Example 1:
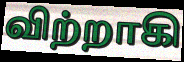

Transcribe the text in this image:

விற்றாகி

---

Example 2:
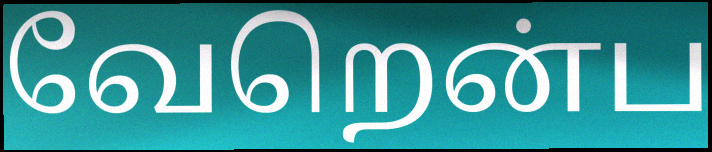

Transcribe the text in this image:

வேறென்ப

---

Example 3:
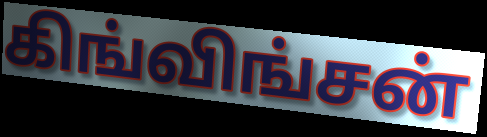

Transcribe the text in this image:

கிங்விங்சன்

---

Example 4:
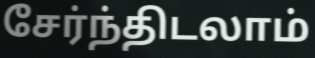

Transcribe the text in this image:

சேர்ந்திடலாம்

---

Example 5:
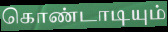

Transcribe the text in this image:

கொண்டாடியும்